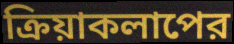
ক্রিয়াকলাপের